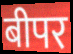
बीपर